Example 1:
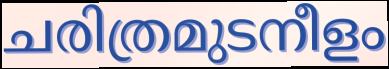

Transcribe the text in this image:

ചരിത്രമുടനീളം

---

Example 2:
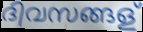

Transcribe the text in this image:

ദിവസങ്ങള്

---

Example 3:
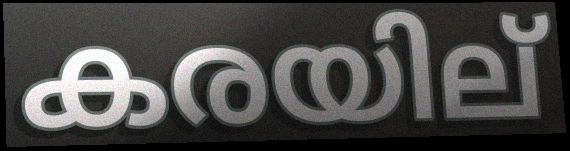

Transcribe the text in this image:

കരയില്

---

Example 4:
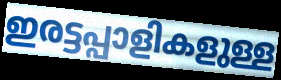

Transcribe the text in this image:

ഇരട്ടപ്പാളികളുള്ള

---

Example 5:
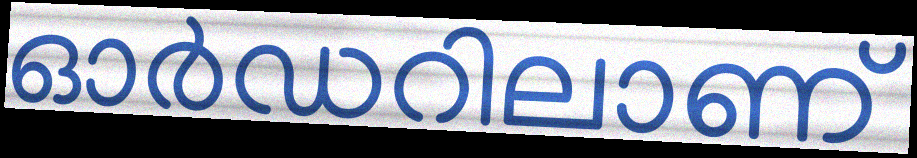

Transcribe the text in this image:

ഓർഡറിലാണ്